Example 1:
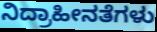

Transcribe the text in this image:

ನಿದ್ರಾಹೀನತೆಗಳು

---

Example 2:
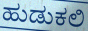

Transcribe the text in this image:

ಹುಡುಕಲಿ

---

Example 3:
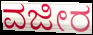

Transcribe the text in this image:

ವಜೀರ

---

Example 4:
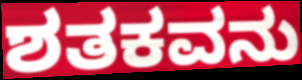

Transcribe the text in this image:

ಶತಕವನು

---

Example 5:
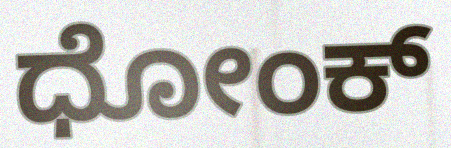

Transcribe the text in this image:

ಧೋಂಕ್